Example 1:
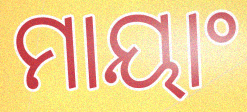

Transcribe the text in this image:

ମାୟାଂ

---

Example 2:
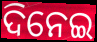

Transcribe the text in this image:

ଦିନେଇ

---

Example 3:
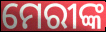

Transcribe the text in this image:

ମେରୀଙ୍କ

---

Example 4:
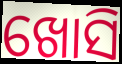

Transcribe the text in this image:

ଖୋସି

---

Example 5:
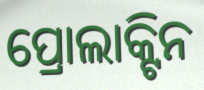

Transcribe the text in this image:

ପ୍ରୋଲାକ୍ଟିନ